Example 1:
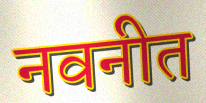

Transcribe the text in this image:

नवनीत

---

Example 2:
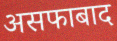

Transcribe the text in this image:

असफाबाद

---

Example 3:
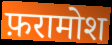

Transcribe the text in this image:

फ़रामोश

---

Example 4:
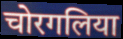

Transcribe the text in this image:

चोरगलिया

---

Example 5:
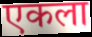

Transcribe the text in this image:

एकला